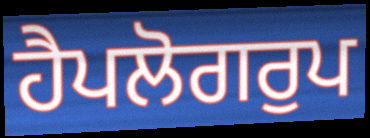
ਹੈਪਲੋਗਰੁਪ